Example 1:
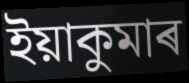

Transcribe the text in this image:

ইয়াকুমাৰ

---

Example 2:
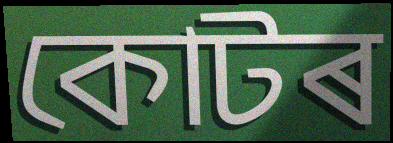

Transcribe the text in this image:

কোটৰ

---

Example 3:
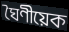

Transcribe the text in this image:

ঘৈণীয়েক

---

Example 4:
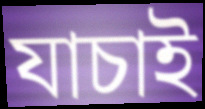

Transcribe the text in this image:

যাচাই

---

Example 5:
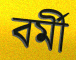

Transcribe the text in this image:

বৰ্মী